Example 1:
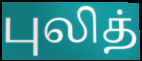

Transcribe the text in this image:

புலித்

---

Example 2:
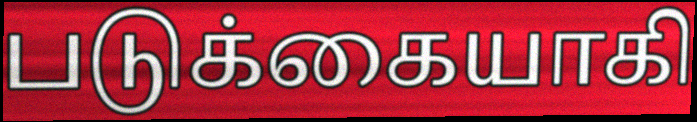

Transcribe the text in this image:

படுக்கையாகி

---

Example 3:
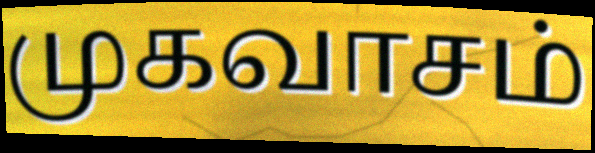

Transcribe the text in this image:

முகவாசம்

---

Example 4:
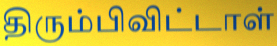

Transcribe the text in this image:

திரும்பிவிட்டாள்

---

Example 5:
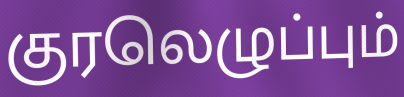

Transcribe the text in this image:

குரலெழுப்பும்